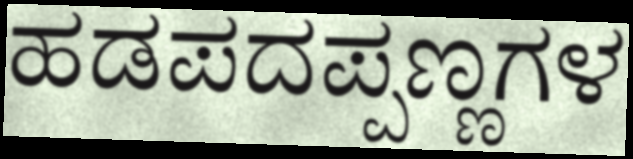
ಹಡಪದಪ್ಪಣ್ಣಗಳ